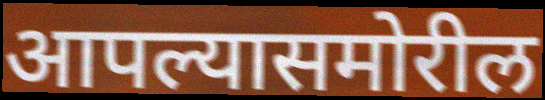
आपल्यासमोरील